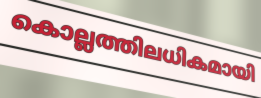
കൊല്ലത്തിലധികമായി